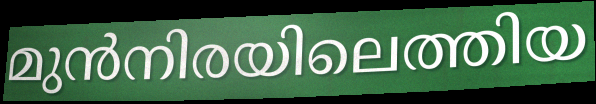
മുൻനിരയിലെത്തിയ